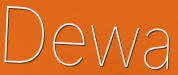
Dewa